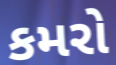
કમરો